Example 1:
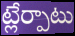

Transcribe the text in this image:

ట్లేర్పాటు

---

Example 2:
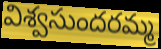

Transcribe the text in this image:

విశ్వసుందరమ్మ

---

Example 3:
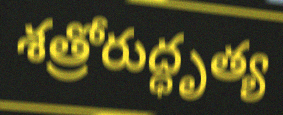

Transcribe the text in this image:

శత్రోరుద్ధృత్య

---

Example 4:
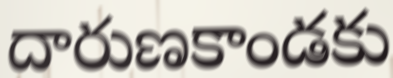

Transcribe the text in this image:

దారుణకాండకు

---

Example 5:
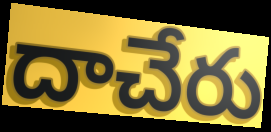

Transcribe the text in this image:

దాచేరు